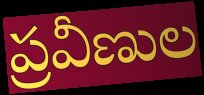
ప్రవీణుల